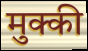
मुक्की